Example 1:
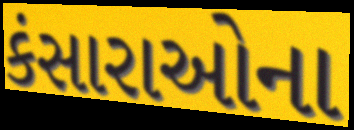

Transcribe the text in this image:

કંસારાઓના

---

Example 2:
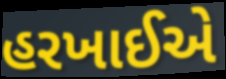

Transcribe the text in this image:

હરખાઈએ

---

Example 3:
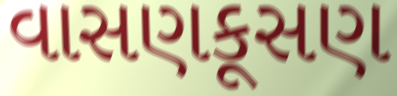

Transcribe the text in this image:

વાસણકૂસણ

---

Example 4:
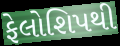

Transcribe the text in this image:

ફેલોશિપથી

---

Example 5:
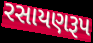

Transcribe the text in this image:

રસાયણરૂપ